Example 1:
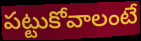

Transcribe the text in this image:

పట్టుకోవాలంటే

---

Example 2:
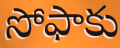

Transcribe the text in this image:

సోఫాకు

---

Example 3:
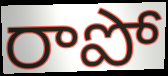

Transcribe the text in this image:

రాపో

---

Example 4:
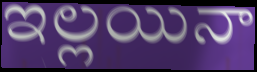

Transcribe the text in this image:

ఇల్లయినా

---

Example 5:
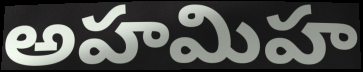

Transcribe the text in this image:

అహమిహ